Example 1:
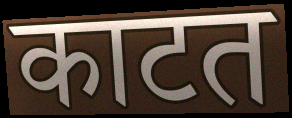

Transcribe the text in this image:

काटत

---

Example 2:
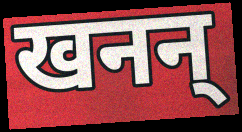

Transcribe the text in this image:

खनन्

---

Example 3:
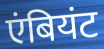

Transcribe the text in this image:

एंबियंट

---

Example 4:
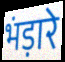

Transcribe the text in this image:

भंड़ारे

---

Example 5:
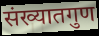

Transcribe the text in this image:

संख्यातगुण